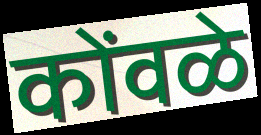
कोंवळे